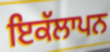
ਇਕੱਲਾਪਨ